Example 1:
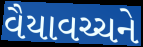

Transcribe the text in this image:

વૈયાવચ્ચને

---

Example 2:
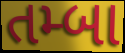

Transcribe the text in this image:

તમ્બા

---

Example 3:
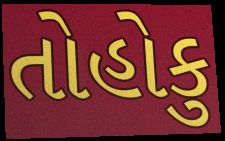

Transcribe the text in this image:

તોહોકુ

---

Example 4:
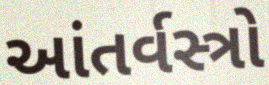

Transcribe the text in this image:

આંતર્વસ્ત્રો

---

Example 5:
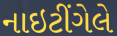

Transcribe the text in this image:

નાઇટીંગેલે